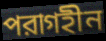
পরাগহীন